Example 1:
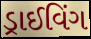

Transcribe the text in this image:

ડ્રાઈવિંગ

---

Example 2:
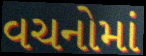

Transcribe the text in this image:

વચનોમાં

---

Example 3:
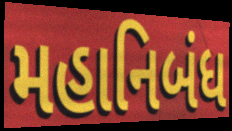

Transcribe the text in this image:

મહાનિબંધ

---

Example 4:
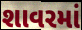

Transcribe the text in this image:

શાવરમાં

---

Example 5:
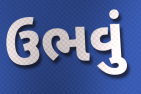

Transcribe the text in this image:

ઉભવું